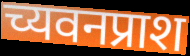
च्‍यवनप्राश